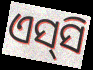
ଏସ୍‌ସି